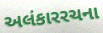
અલંકારરચના